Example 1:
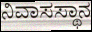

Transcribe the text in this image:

ನಿವಾಸಸ್ಥಾನ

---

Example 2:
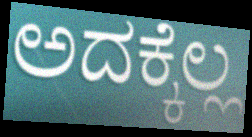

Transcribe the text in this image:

ಅದಕ್ಕೆಲ್ಲ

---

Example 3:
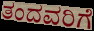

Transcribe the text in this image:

ತಂದವರಿಗೆ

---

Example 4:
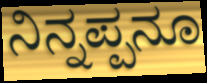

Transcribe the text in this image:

ನಿನ್ನಪ್ಪನೂ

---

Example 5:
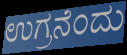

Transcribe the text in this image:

ಉಗ್ರನೆಂದು